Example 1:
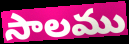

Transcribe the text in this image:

సాలము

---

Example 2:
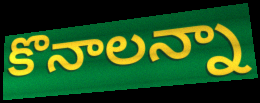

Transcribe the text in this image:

కొనాలన్నా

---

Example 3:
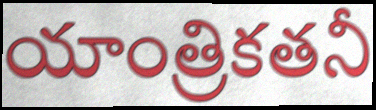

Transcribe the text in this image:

యాంత్రికతనీ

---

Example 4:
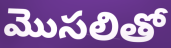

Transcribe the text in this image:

మొసలితో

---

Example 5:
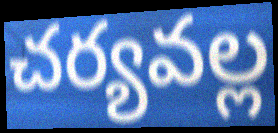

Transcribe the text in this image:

చర్యవల్ల